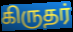
கிருதர்